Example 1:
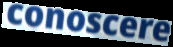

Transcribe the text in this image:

conoscere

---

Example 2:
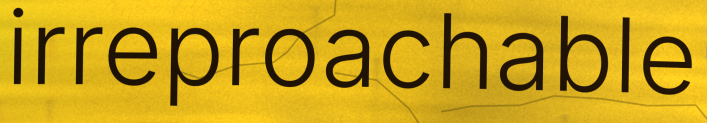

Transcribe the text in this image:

irreproachable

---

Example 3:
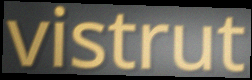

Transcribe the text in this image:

vistrut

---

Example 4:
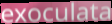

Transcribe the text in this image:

exoculata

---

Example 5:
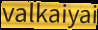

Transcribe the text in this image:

valkaiyai